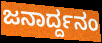
ಜನಾರ್ದ್ದನಂ